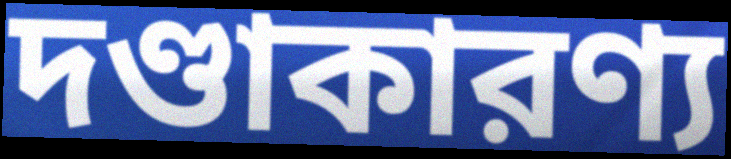
দণ্ডাকারণ্য